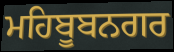
ਮਹਿਬੂਬਨਗਰ